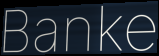
Banke